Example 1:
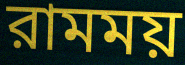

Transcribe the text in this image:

রামময়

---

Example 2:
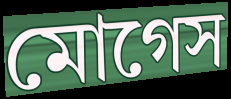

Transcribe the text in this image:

মোগেস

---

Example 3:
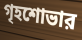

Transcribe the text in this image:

গৃহশোভার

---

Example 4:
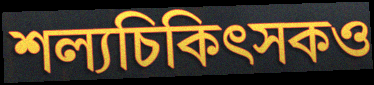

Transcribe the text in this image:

শল্যচিকিৎসকও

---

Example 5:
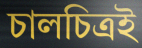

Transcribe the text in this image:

চালচিত্রই